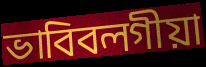
ভাবিবলগীয়া